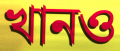
খানও